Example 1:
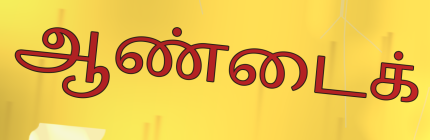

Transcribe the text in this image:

ஆண்டைக்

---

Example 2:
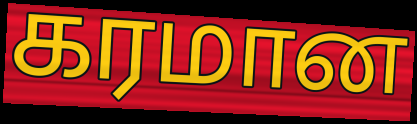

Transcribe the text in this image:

கரமான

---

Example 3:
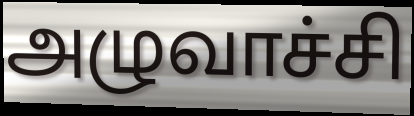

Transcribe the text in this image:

அழுவாச்சி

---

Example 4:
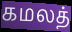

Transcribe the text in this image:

கமலத்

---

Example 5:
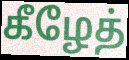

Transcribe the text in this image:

கீழேத்